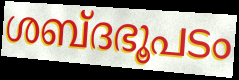
ശബ്ദഭൂപടം